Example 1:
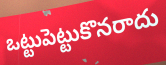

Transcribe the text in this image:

ఒట్టుపెట్టుకొనరాదు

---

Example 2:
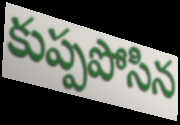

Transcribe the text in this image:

కుప్పపోసిన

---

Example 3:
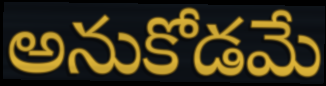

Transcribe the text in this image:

అనుకోడమే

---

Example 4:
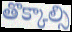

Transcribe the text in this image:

తొక్కాల్సి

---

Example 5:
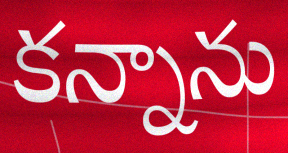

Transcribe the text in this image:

కన్నాను